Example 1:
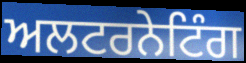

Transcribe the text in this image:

ਅਲਟਰਨੇਟਿੰਗ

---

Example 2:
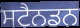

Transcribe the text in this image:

ਸਟੈਨਡਨ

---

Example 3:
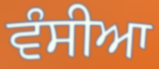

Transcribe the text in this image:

ਵੰਸੀਆ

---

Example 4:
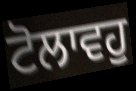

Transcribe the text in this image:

ਟੋਲਾਵਹੁ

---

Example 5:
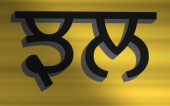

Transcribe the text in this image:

ਝਲ